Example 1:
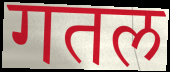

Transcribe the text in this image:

गतल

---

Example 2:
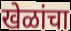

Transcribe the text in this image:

खेळांचा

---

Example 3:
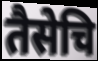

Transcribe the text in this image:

तैसेचि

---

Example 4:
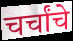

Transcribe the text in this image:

चर्चांचे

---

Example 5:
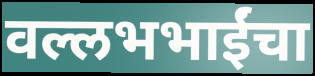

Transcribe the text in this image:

वल्लभभाईंचा